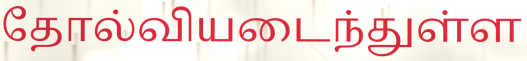
தோல்வியடைந்துள்ள